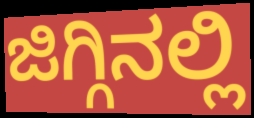
ಜಿಗ್ಗಿನಲ್ಲಿ